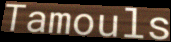
Tamouls